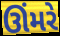
ઊંમરે